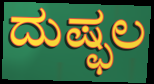
ದುಷ್ಫಲ